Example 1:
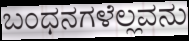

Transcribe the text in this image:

ಬಂಧನಗಳೆಲ್ಲವನು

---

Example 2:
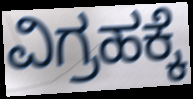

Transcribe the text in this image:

ವಿಗ್ರಹಕ್ಕೆ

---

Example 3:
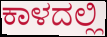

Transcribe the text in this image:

ಕಾಳದಲ್ಲಿ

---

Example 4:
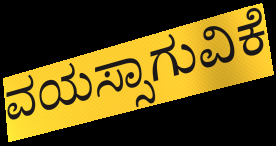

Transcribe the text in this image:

ವಯಸ್ಸಾಗುವಿಕೆ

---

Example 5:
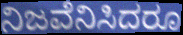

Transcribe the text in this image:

ನಿಜವೆನಿಸಿದರೂ